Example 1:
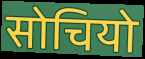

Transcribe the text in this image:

सोचियो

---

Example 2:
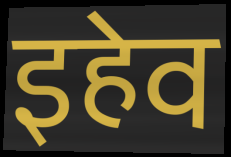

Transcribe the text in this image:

इहेव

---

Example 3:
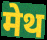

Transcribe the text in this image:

मेथ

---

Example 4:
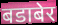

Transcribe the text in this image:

बडाबेर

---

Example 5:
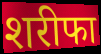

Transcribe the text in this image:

शरीफा